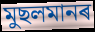
মুছলমানৰ